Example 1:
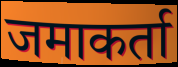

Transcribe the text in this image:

जमाकर्ता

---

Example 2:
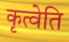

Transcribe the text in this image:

कृत्वेति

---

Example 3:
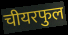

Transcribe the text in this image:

चीयरफुल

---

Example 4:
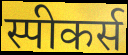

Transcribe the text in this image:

स्पीकर्स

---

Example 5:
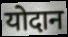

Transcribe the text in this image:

योदान